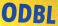
ODBL